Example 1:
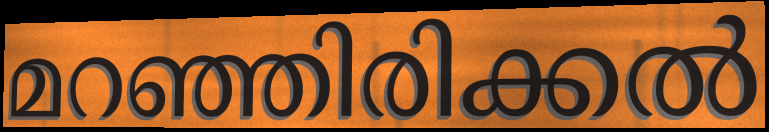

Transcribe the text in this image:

മറഞ്ഞിരിക്കൽ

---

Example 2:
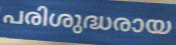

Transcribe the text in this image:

പരിശുദ്ധരായ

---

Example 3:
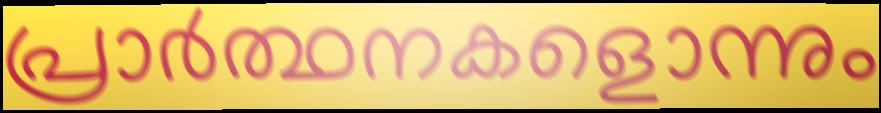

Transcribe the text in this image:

പ്രാർത്ഥനകളൊന്നും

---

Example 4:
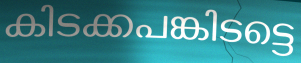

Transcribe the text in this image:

കിടക്കപങ്കിടട്ടെ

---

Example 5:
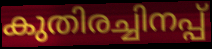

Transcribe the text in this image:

കുതിരച്ചിനപ്പ്